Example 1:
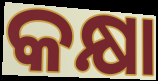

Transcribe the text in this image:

କକ୍ଷା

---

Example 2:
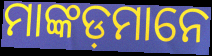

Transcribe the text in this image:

ମାଙ୍କଡ଼ମାନେ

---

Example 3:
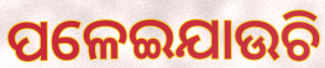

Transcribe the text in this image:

ପଳେଇଯାଉଚି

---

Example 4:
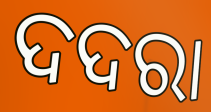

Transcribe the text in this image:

ଦଦରା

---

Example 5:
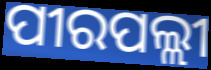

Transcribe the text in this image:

ପୀରପଲ୍ଲୀ